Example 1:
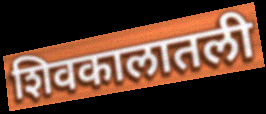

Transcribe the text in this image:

शिवकालातली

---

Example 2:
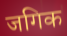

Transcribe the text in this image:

जगिक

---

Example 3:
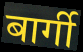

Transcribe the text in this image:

बार्गी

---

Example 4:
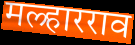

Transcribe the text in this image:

मल्हारराव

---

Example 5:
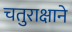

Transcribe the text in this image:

चतुराक्षाने